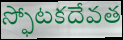
స్ఫోటకదేవత